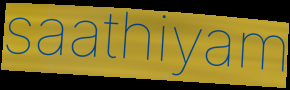
saathiyam